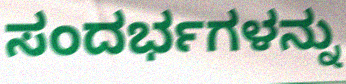
ಸಂದರ್ಭಗಳನ್ನು